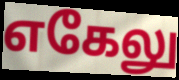
எகேலு